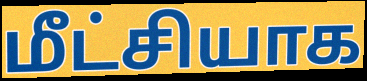
மீட்சியாக